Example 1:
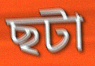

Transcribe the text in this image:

ছটা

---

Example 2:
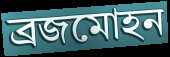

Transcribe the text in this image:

ব্ৰজমোহন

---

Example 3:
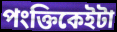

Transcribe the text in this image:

পংক্তিকেইটা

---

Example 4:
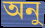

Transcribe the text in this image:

অনু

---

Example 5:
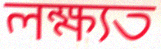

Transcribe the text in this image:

লক্ষ্যত